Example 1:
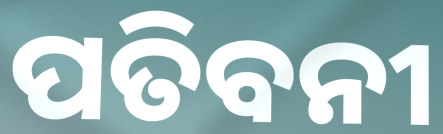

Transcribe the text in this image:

ପତିବନୀ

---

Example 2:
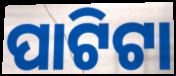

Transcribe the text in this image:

ପାଟିଟା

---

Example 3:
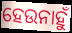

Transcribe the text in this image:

ହେଉନାହୁଁ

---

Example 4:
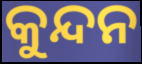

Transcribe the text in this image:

କୁନ୍ଦନ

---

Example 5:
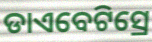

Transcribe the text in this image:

ଡାଏବେଟିସ୍ରେ